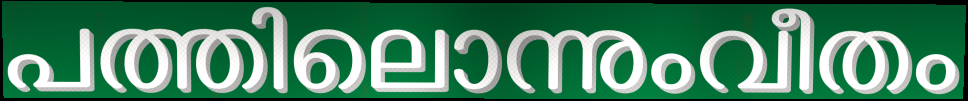
പത്തിലൊന്നുംവീതം